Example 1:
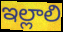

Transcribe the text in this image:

ఇల్లాలి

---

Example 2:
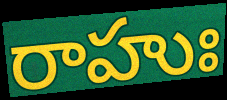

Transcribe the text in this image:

రాహుః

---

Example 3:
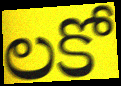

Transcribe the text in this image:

లకో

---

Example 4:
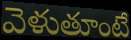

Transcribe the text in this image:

వెళుతూంటే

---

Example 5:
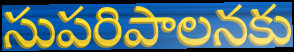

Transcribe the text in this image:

సుపరిపాలనకు